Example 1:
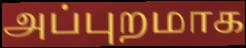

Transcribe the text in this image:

அப்புறமாக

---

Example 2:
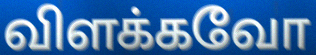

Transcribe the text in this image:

விளக்கவோ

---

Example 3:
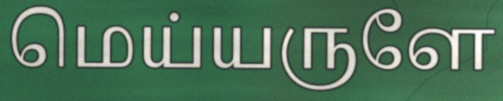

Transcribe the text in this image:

மெய்யருளே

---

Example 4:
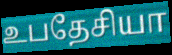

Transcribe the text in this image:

உபதேசியா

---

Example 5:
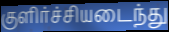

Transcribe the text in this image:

குளிர்ச்சியடைந்து